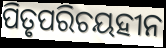
ପିତୃପରିଚୟହୀନ